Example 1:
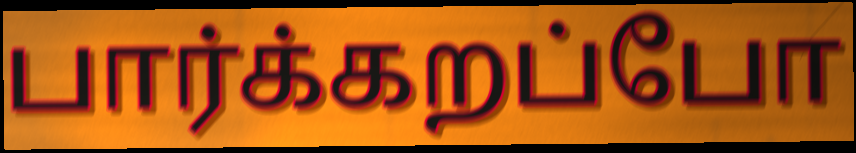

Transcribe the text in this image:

பார்க்கறப்போ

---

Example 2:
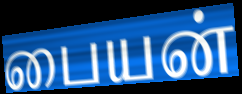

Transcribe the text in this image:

பையன்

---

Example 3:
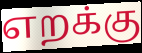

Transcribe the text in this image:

எறக்கு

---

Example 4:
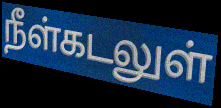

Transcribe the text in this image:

நீள்கடலுள்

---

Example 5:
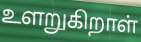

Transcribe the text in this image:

உளறுகிறாள்